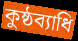
কুষ্ঠব্যাধি